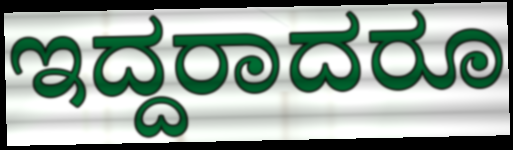
ಇದ್ದರಾದರೂ